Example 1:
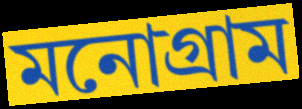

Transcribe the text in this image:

মনোগ্রাম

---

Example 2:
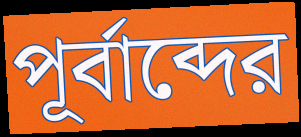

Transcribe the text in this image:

পূর্বাব্দের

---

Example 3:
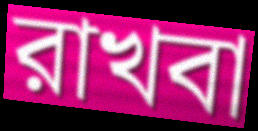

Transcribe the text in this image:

রাখবা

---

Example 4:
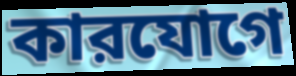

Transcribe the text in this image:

কারযোগে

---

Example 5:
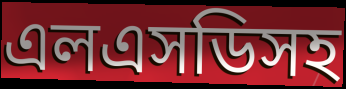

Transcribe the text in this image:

এলএসডিসহ